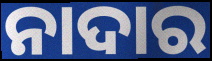
ନାଦାର